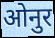
ओनुर